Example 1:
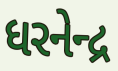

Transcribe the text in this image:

ધરનેન્દ્ર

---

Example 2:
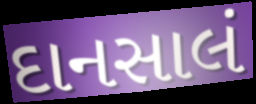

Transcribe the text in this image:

દાનસાલં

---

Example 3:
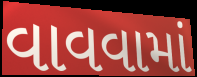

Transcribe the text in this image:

વાવવામાં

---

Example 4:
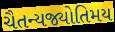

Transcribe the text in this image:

ચૈતન્યજ્યોતિમય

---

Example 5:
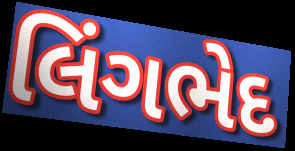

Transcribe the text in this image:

લિંગભેદ